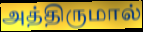
அத்திருமால்